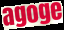
agoge